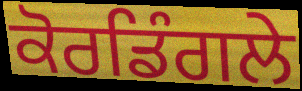
ਕੋਰਡਿੰਗਲੇ